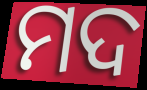
ମଦ